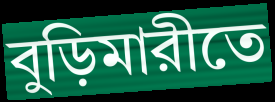
বুড়িমারীতে